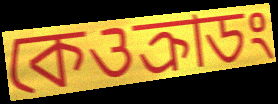
কেওক্রাডং